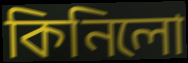
কিনিলো